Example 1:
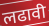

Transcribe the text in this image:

लढावी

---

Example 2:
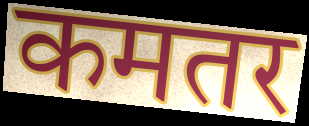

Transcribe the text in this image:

कमतर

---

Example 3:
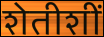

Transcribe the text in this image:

शेतीशीं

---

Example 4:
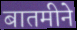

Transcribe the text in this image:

बातमीने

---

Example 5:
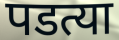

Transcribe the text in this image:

पडत्या